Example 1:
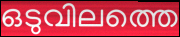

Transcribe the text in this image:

ഒടുവിലത്തെ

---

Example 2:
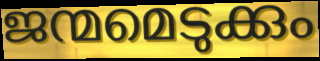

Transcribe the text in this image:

ജന്മമെടുക്കും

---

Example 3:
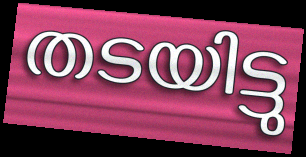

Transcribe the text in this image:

തടയിട്ടു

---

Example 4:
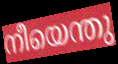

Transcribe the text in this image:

നീയെന്തു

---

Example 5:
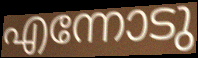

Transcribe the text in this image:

എന്നോടു